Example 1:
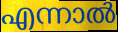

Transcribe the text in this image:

എന്നാൽ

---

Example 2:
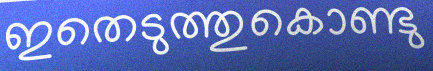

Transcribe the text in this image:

ഇതെടുത്തുകൊണ്ടു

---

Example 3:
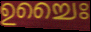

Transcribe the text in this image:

ഉച്ചൈഃ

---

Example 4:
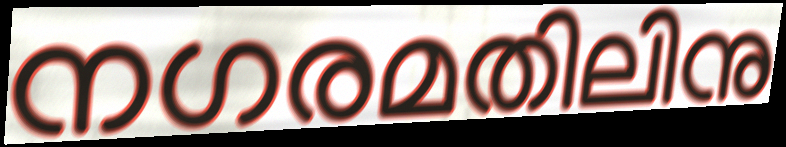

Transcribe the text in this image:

നഗരമതിലിനു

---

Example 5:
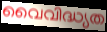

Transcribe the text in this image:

വൈവിദ്ധ്യത